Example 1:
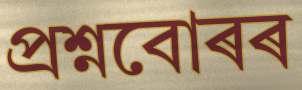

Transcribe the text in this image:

প্ৰশ্নবোৰৰ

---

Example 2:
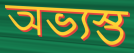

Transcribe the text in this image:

অভ্যস্ত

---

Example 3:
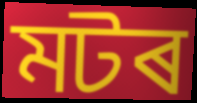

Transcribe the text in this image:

মটৰ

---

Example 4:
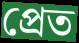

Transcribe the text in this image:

প্ৰেত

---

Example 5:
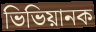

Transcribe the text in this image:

ভিভিয়ানক